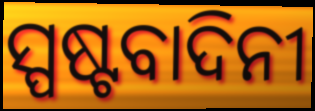
ସ୍ପଷ୍ଟବାଦିନୀ